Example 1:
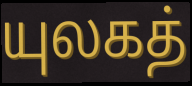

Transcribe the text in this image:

யுலகத்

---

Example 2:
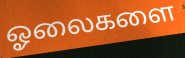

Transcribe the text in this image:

ஓலைகளை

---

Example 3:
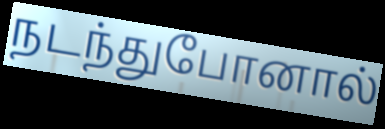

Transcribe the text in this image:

நடந்துபோனால்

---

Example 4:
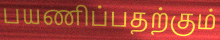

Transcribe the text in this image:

பயணிப்பதற்கும்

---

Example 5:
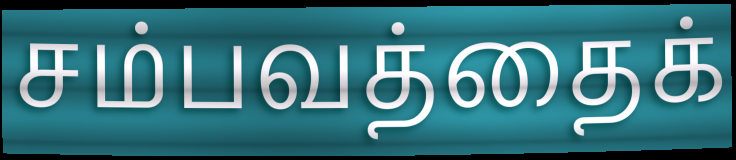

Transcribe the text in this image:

சம்பவத்தைக்